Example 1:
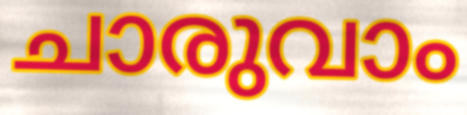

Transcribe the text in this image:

ചാരുവാം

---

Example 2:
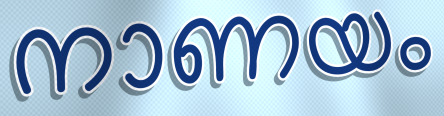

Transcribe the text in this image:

നാണയം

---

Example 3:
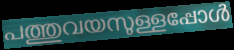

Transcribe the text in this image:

പത്തുവയസുള്ളപ്പോൾ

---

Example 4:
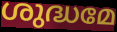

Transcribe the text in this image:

ശുദ്ധമേ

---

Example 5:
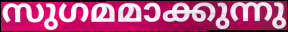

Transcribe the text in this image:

സുഗമമാക്കുന്നു